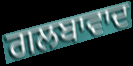
ਗਲਬਾਵਾਦ